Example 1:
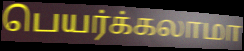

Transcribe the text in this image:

பெயர்க்கலாமா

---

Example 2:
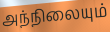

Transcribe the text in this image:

அந்நிலையும்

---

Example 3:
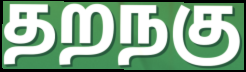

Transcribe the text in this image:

தறநகு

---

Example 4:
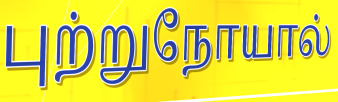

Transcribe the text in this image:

புற்றுநோயால்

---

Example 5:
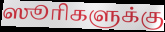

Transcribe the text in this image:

ஸூரிகளுக்கு